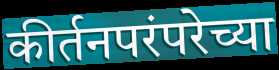
कीर्तनपरंपरेच्या